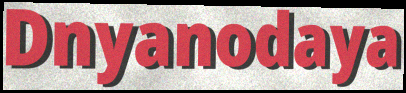
Dnyanodaya